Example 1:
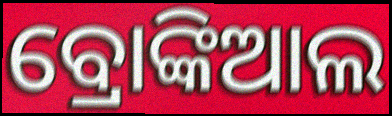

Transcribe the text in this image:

ବ୍ରୋଙ୍କିଆଲ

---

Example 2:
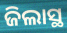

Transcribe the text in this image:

ଜିଲାସ୍ଥ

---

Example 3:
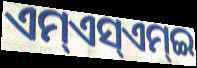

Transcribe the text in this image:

ଏମ୍ଏସ୍ଏମ୍ଇ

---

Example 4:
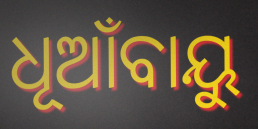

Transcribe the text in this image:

ଧୂଆଁବାୟୁ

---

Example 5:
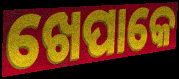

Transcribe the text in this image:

ଖେପାକେ